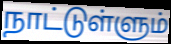
நாட்டுள்ளும்